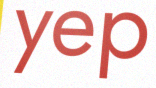
yep